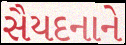
સૈયદનાને